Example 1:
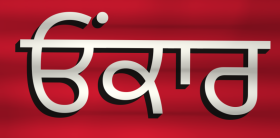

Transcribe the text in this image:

ਓਂਕਾਰ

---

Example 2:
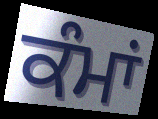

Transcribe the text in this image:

ਕੰਮਾਂ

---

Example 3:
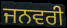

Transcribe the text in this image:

ਜਨਵਰੀ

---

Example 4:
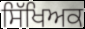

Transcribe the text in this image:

ਸਿੱਖਿਅਕ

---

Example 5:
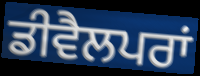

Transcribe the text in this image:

ਡੀਵੈਲਪਰਾਂ